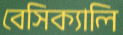
বেসিক্যালি